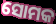
ସୋମକ